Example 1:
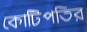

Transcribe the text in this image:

কোটিপতির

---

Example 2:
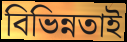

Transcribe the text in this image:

বিভিন্নতাই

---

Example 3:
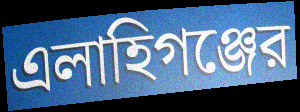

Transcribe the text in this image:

এলাহিগঞ্জের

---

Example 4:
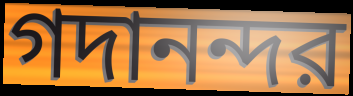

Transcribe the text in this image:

গদানন্দর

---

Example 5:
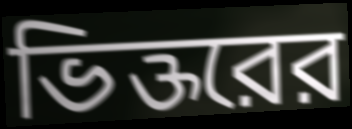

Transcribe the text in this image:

ভিক্তরের